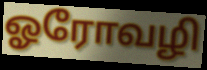
ஓரோவழி